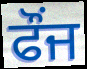
ਫੌਂਜ